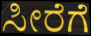
ಸೀರೆಗೆ